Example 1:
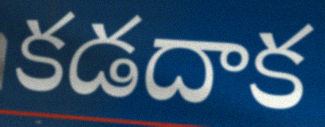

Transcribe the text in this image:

కడదాక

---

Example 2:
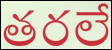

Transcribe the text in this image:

తరలే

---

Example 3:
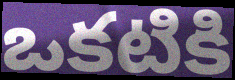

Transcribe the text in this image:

ఒకటికి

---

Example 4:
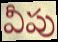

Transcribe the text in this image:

వీపు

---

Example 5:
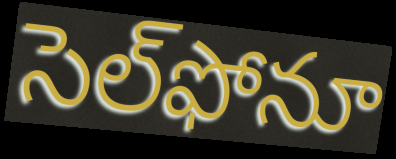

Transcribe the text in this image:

సెల్‌ఫోనూ